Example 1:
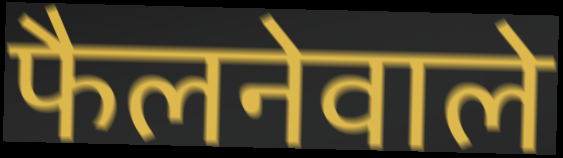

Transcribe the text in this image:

फैलनेवाले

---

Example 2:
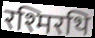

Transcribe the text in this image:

रश्मिरथि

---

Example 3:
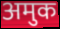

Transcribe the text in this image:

अमुक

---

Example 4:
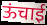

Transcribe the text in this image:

ऊंचाई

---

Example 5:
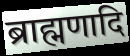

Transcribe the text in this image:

ब्राह्मणादि